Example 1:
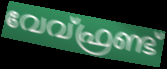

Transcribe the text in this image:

വേവ്ഫ്രണ്ട്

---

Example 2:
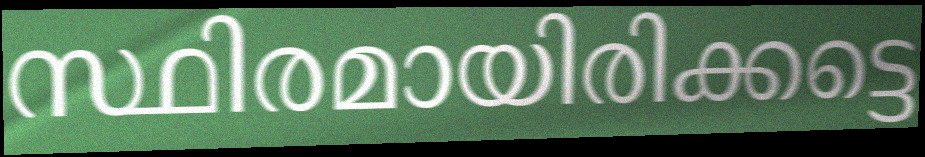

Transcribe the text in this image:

സ്ഥിരമായിരിക്കട്ടെ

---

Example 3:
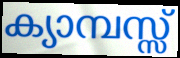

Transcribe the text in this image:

ക്യാമ്പസ്സ്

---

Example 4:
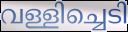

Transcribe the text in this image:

വള്ളിച്ചെടി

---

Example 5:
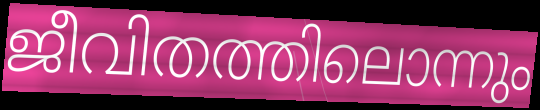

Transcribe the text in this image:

ജീവിതത്തിലൊന്നും